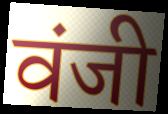
वंजी